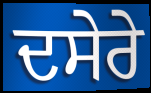
ਦਸੇਰੇ